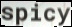
spicy